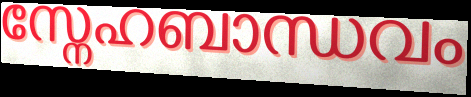
സ്നേഹബാന്ധവം